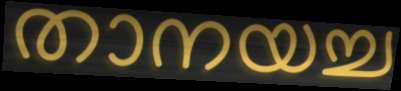
താനയച്ച